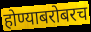
होण्याबरोबरच